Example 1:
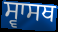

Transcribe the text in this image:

ਸ੍ਵਾਸਥ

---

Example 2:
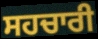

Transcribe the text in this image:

ਸਹਚਾਰੀ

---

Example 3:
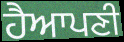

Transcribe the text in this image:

ਹੈਆਪਣੀ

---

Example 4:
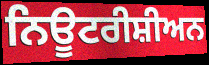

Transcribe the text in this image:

ਨਿਊਟਰੀਸ਼ੀਅਨ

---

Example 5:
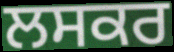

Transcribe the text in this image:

ਲਸਕਰ